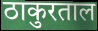
ठाकुरताल